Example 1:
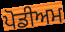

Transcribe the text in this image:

ਪੋਡੀਅਮ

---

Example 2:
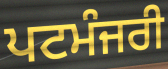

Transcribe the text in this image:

ਪਟਮੰਜਰੀ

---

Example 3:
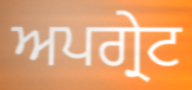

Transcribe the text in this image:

ਅਪਗ੍ਰੇਟ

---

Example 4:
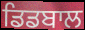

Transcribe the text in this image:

ਡਿਡਬਾਲ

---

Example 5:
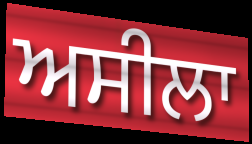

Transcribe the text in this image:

ਅਸੀਲਾ